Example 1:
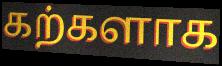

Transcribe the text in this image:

கற்களாக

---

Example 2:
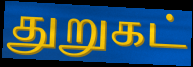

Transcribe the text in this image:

துறுகட்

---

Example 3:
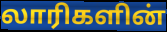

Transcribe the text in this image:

லாரிகளின்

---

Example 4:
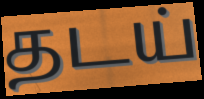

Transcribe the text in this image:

தடய்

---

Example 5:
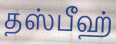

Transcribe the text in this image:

தஸ்பீஹ்